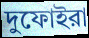
দুফোইরা